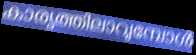
കാര്യത്തിലാവുമ്പോൾ